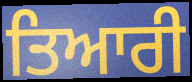
ਤਿਆਰੀ